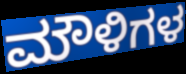
ಮೌಳಿಗಳ